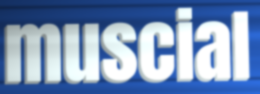
muscial